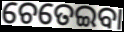
ଚେତେଇବା